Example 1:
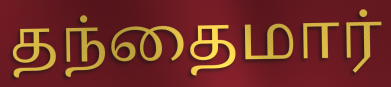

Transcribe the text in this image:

தந்தைமார்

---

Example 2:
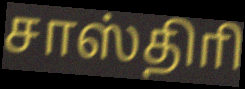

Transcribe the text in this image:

சாஸ்திரி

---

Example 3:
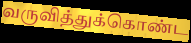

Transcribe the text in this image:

வருவித்துக்கொண்ட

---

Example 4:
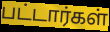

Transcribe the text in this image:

பட்டார்கள்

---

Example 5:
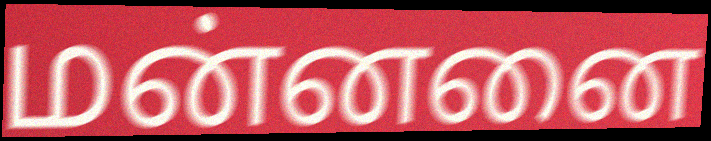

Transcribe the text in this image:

மன்னனை